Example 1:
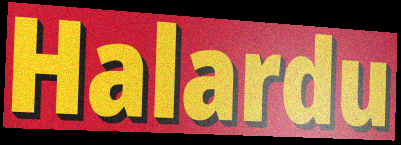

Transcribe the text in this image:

Halardu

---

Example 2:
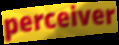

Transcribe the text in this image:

perceiver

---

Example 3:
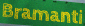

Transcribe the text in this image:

Bramanti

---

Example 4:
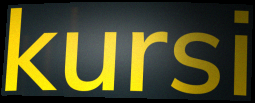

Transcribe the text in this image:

kursi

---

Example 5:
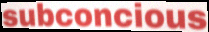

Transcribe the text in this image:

subconcious